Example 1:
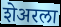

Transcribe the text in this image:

शेअरला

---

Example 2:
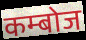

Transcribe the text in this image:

कम्बोज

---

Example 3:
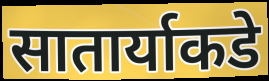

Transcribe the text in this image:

सातार्याकडे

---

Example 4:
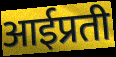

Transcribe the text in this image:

आईप्रती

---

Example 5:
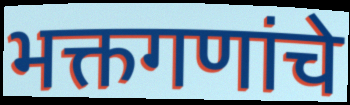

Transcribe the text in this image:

भक्तगणांचे